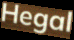
Hegal